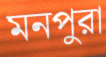
মনপুরা